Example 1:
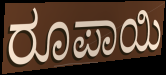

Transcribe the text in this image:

ರೂಪಾಯಿ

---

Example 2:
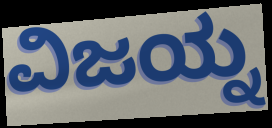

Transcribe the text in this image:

ವಿಜಯ್ನ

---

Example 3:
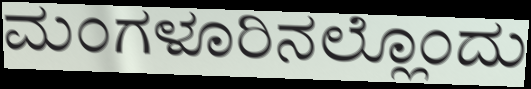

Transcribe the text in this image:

ಮಂಗಳೂರಿನಲ್ಲೊಂದು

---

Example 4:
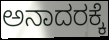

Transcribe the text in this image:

ಅನಾದರಕ್ಕೆ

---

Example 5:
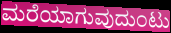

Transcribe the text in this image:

ಮರೆಯಾಗುವುದುಂಟು